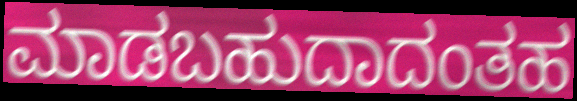
ಮಾಡಬಹುದಾದಂತಹ